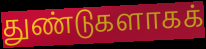
துண்டுகளாகக்